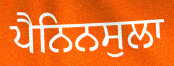
ਪੈਨਿਨਸੁਲਾ